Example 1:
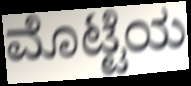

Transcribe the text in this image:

ಮೊಟ್ಟೆಯ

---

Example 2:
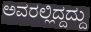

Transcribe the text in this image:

ಅವರಲ್ಲಿದ್ದದ್ದು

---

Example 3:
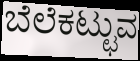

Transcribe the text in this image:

ಬೆಲೆಕಟ್ಟುವ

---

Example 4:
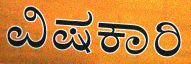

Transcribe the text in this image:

ವಿಷಕಾರಿ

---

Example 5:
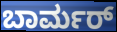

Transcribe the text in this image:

ಬಾರ್ಮರ್